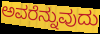
ಅವರೆನ್ನುವುದು